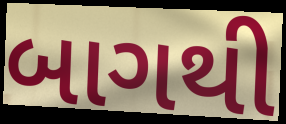
બાગથી